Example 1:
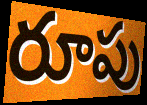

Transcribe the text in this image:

రూపు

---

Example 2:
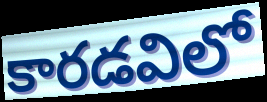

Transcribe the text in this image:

కారడవిలో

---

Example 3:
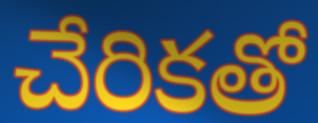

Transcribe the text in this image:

చేరికతో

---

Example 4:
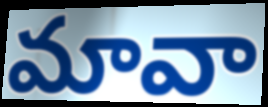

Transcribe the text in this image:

మావా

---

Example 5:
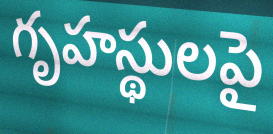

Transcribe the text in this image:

గృహస్థులపై